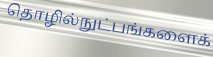
தொழில்நுட்பங்களைக்